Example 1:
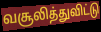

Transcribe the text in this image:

வசூலித்துவிட்டு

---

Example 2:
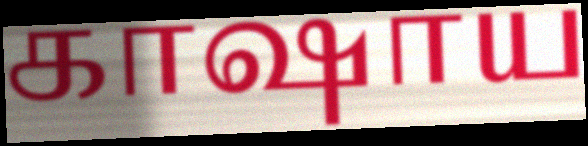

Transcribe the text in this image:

காஷாய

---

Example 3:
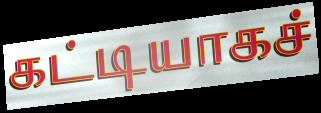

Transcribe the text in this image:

கட்டியாகச்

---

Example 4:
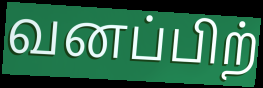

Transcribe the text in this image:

வனப்பிற்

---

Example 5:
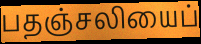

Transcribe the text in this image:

பதஞ்சலியைப்